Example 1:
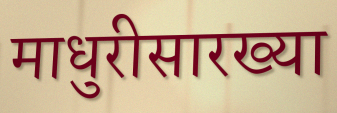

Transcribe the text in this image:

माधुरीसारख्या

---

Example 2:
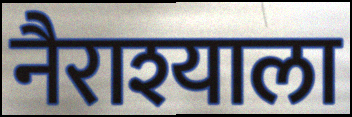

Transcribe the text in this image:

नैराश्याला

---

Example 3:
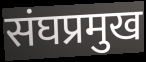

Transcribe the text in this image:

संघप्रमुख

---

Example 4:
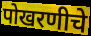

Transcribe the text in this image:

पोखरणीचे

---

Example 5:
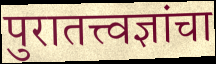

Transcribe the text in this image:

पुरातत्त्वज्ञांचा